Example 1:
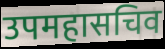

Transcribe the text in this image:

उपमहासचिव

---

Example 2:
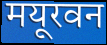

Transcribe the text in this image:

मयूरवन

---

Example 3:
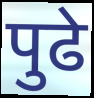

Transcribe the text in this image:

पुढे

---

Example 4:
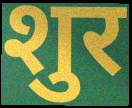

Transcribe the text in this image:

शुर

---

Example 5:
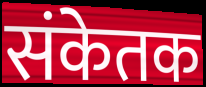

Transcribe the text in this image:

संकेतक